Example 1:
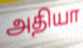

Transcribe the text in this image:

அதியா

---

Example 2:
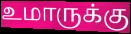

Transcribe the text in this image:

உமாருக்கு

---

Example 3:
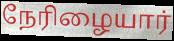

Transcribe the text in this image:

நேரிழையார்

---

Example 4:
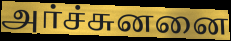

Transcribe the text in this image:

அர்ச்சுனனை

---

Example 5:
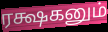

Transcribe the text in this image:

ரக்ஷகனும்